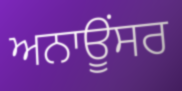
ਅਨਾਊਂਸਰ